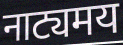
नाट्यमय